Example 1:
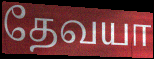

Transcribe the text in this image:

தேவயா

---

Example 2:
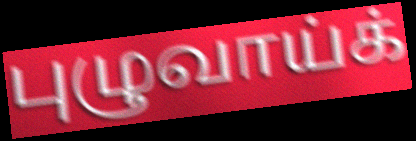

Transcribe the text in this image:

புழுவாய்க்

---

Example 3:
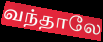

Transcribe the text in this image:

வந்தாலே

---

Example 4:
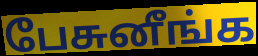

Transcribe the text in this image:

பேசுனீங்க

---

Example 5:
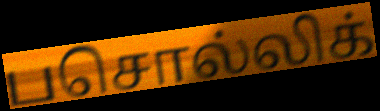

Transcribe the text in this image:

பசொல்லிக்